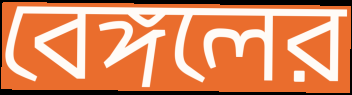
বেঙ্গলের